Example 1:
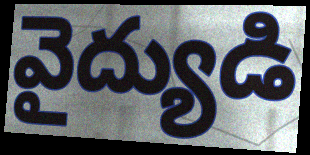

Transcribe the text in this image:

వైద్యుడి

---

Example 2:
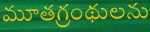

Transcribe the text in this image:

మూతగ్రంథులను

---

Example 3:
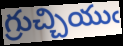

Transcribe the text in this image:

గ్రుచ్చియుఁ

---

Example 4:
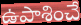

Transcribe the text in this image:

ఉపాశించే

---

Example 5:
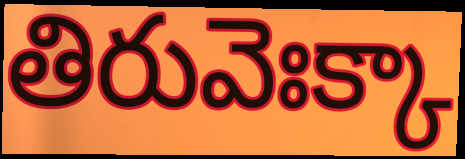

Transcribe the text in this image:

తిరువెఃక్కా